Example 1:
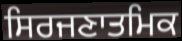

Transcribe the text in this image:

ਸਿਰਜਣਾਤਮਿਕ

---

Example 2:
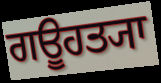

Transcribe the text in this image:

ਗਊਹਤ੍ਯਾ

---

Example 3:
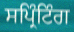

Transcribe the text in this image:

ਸਪ੍ਰਿੰਟਿੰਗ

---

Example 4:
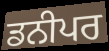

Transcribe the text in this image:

ਡਨੀਪਰ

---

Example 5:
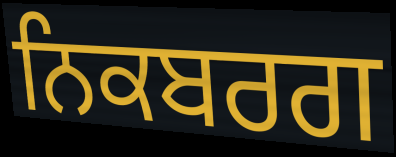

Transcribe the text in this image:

ਨਿਕਬਰਗ